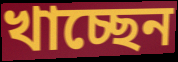
খাচ্ছেন